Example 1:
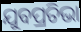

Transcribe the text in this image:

ଯୁବପ୍ରତିଭା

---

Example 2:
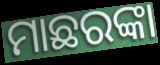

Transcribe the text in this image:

ମାଛରଙ୍କା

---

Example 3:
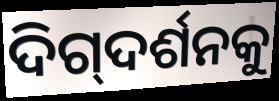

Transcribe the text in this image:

ଦିଗ୍‌ଦର୍ଶନକୁ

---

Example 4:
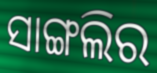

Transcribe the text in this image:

ସାଙ୍ଗଲିର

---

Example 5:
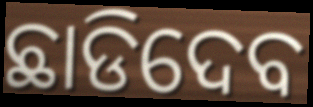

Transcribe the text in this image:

ଛାଡିଦେବ